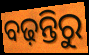
ବଢ଼ନ୍ତିରୁ